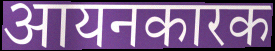
आयनकारक